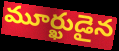
మూర్ఖుడైన